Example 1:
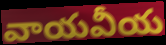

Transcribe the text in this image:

వాయవీయ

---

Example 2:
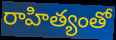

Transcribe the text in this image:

రాహిత్యంతో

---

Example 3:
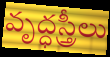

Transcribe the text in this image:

వృద్ధస్త్రీలు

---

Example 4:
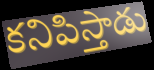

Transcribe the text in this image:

కనిపిస్తాడు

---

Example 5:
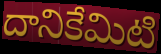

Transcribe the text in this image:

దానికేమిటి